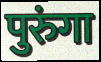
पुरुंगा